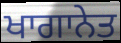
ਖਾਗਾਨੇਤ